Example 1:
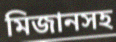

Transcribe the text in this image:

মিজানসহ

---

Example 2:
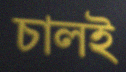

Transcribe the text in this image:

চালই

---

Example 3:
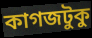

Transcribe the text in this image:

কাগজটুকু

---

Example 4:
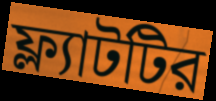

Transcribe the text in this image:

ফ্ল্যাটটির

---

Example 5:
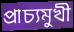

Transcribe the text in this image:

প্রাচ্যমুখী